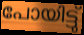
പോയിട്ടു്